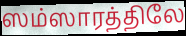
ஸம்ஸாரத்திலே